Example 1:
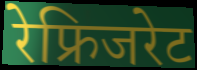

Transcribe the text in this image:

रेफ्रिजरेट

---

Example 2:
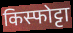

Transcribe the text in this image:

किस्फोट्टा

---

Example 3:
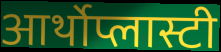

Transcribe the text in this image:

आर्थोप्लास्टी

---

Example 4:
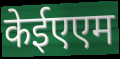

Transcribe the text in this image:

केईएएम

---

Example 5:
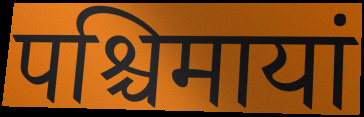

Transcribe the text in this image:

पश्चिमायां